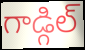
గాడ్గిల్